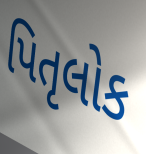
પિતૃલોક